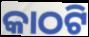
କାଠଟି